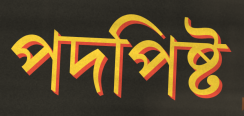
পদপিষ্ট